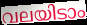
വലയിടാം